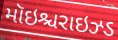
મૉઇશ્ચરાઇઝ્ડ